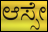
ಆಸ್ಸೇ